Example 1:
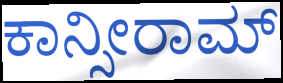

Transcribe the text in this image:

ಕಾನ್ಸೀರಾಮ್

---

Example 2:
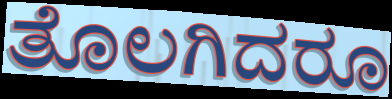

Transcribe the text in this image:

ತೊಲಗಿದರೂ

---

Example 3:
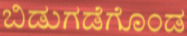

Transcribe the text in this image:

ಬಿಡುಗಡೆಗೊಂಡ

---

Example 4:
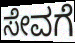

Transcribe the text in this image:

ಸೇವಗೆ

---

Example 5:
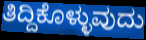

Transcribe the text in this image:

ತಿದ್ದಿಕೊಳ್ಳುವುದು